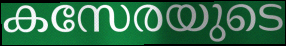
കസേരയുടെ